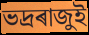
ভদ্ৰৰাজুই